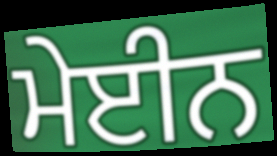
ਮੇਈਨ